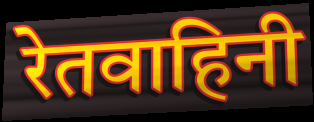
रेतवाहिनी